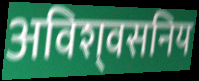
अविश्वसनिय